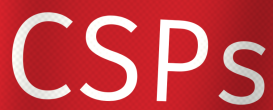
CSPs